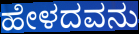
ಹೇಳದವನು